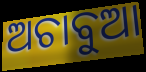
ଅଚାବୁଆ